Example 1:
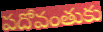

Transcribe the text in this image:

పదోవంతుకు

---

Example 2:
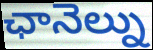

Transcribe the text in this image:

ఛానెల్ను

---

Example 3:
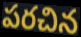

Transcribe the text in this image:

పరచిన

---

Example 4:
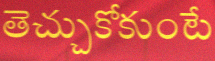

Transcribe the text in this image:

తెచ్చుకోకుంటే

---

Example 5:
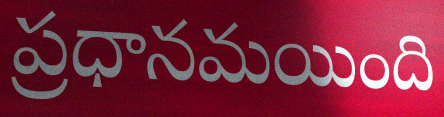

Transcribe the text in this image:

ప్రధానమయింది